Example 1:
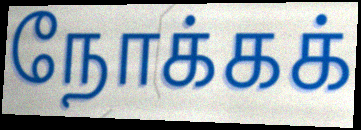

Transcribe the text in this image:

நோக்கக்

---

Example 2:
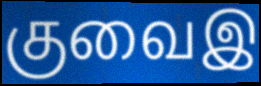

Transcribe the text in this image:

குவைஇ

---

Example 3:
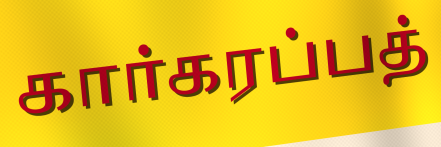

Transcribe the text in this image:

கார்கரப்பத்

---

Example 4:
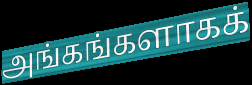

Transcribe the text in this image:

அங்கங்களாகக்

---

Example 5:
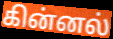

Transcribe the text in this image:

கின்னல்